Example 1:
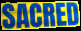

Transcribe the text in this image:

SACRED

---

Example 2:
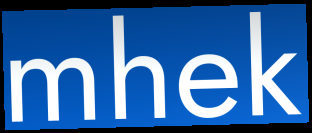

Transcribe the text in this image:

mhek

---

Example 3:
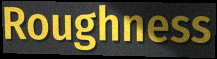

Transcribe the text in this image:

Roughness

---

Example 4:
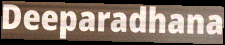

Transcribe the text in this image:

Deeparadhana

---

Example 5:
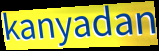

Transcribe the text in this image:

kanyadan